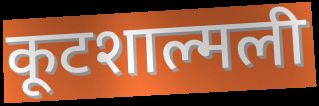
कूटशाल्मली